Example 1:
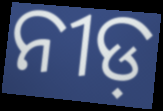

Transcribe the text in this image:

ନୀଡ଼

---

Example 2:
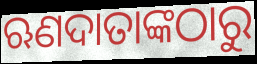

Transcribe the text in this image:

ଋଣଦାତାଙ୍କଠାରୁ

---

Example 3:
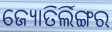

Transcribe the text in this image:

ଜ୍ୟୋତିର୍ଲିଙ୍ଗର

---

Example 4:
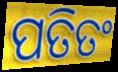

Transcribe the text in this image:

ପତିତଂ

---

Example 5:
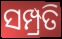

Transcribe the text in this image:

ସମ୍ପ୍ରତି